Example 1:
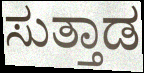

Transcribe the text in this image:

ಸುತ್ತಾಡ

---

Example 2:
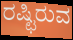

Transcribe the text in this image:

ರಷ್ಟಿರುವ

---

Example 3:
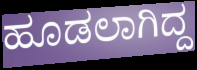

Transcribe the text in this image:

ಹೂಡಲಾಗಿದ್ದ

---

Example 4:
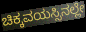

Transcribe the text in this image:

ಚಿಕ್ಕವಯಸ್ಸಿನಲ್ಲೇ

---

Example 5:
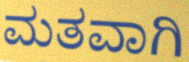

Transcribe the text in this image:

ಮತವಾಗಿ